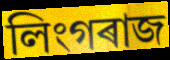
লিংগৰাজ